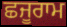
ਛਜੂਰਾਮ